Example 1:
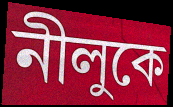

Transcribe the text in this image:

নীলুকে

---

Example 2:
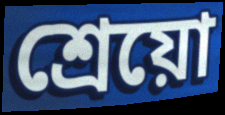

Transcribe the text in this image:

শ্রেয়ো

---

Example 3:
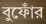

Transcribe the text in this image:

বুফোঁর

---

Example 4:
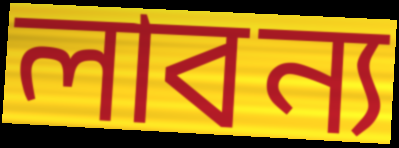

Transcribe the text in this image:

লাবন্য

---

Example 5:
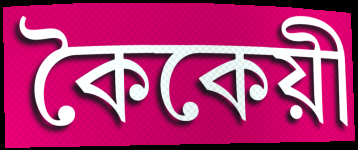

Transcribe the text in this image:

কৈকেয়ী